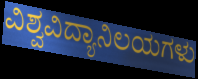
ವಿಶ್ವವಿದ್ಯಾನಿಲಯಗಳು